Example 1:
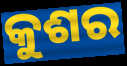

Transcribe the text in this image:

କୁଶର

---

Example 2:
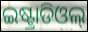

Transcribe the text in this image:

ଇଷ୍ଟ୍ରାଡିଓଲ୍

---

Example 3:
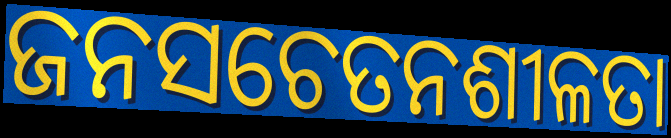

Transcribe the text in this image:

ଜନସଚେତନଶୀଳତା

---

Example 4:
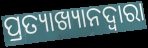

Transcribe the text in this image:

ପ୍ରତ୍ୟାଖ୍ୟାନଦ୍ଵାରା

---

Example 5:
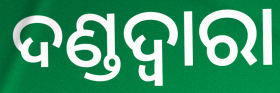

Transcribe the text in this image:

ଦଣ୍ଡଦ୍ୱାରା